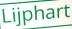
Lijphart